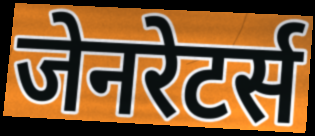
जेनरेटर्स